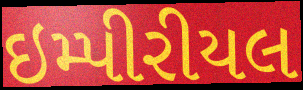
ઇમ્પીરીયલ